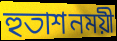
হুতাশনময়ী